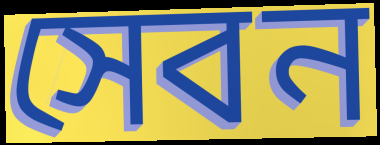
সেবন